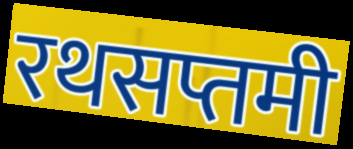
रथसप्तमी